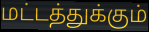
மட்டத்துக்கும்